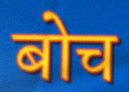
बोच